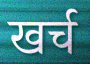
खर्च